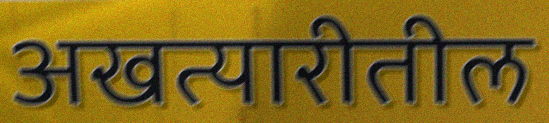
अखत्यारीतील